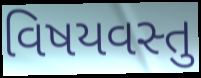
વિષયવસ્તુ